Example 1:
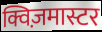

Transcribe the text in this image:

क्विज़मास्टर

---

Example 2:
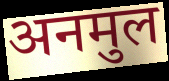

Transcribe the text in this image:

अनमुल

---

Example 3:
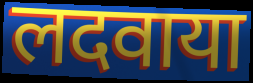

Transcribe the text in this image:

लदवाया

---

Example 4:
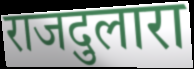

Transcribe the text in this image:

राजदुलारा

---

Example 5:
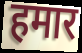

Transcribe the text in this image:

हमार